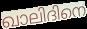
ഖാലിദിനെ